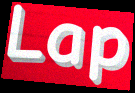
Lap